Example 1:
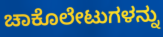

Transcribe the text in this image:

ಚಾಕೊಲೇಟುಗಳನ್ನು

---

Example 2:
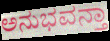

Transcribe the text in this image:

ಅನುಭವನ್ತಾ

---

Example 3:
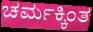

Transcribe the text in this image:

ಚರ್ಮಕ್ಕಿಂತ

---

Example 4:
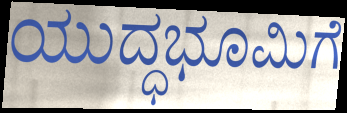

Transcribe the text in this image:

ಯುದ್ಧಭೂಮಿಗೆ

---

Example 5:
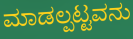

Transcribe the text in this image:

ಮಾಡಲ್ಪಟ್ಟವನು